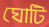
ঘোটি